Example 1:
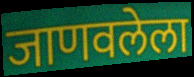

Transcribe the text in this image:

जाणवलेला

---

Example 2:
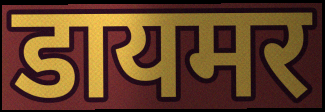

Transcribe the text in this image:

डायमर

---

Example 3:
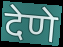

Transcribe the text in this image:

देणे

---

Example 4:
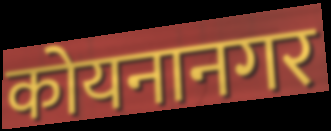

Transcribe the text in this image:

कोयनानगर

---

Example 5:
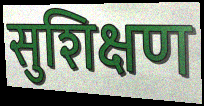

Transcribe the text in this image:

सुशिक्षण